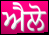
ਐਲੋ